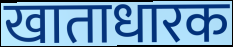
खाताधारक